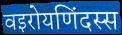
वइरोयणिंदस्स